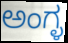
ಅಂಗ್ಳ